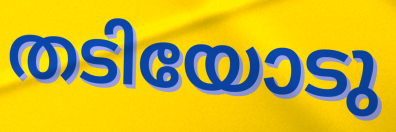
തടിയോടു